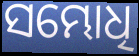
ସମ୍ଭୋଧି